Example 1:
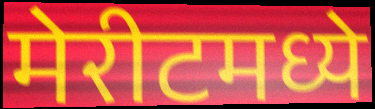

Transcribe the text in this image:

मेरीटमध्ये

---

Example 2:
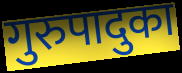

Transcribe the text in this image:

गुरुपादुका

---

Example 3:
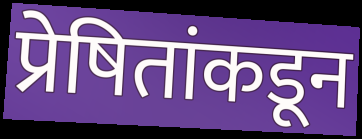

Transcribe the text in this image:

प्रेषितांकडून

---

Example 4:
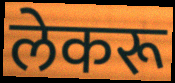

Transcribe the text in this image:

लेकरू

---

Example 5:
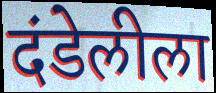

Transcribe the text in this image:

दंडेलीला